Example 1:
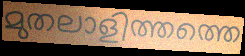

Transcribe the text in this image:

മുതലാളിത്തത്തെ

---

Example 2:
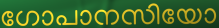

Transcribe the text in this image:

ഗോപാനസിയോ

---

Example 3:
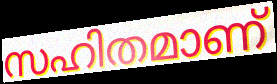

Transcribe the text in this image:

സഹിതമാണ്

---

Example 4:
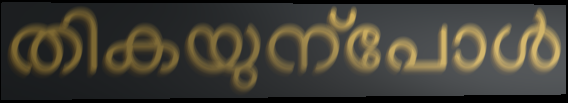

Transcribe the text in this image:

തികയുന്പോൾ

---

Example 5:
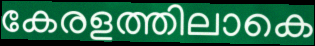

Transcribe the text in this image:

കേരളത്തിലാകെ